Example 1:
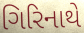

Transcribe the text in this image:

ગિરિનાથે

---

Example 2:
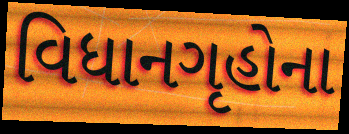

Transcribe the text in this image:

વિધાનગૃહોના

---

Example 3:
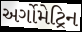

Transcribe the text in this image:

અર્ગોમેટ્રિન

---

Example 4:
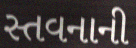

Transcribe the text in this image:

સ્તવનાની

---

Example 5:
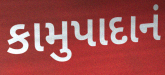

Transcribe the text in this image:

કામુપાદાનં